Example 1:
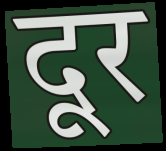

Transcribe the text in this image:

दूर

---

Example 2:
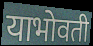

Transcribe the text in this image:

याभोवती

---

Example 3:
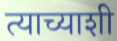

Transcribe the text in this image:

त्याच्याशी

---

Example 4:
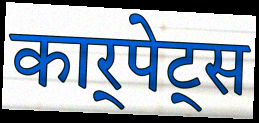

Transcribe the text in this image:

कार्पेट्स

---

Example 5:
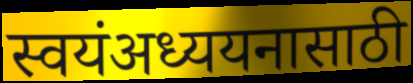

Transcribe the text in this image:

स्वयंअध्ययनासाठी